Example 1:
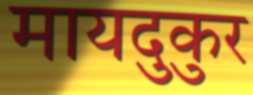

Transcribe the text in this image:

मायदुकुर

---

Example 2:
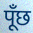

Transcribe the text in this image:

पूँछ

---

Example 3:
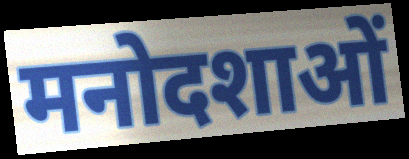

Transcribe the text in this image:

मनोदशाओं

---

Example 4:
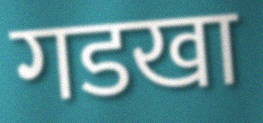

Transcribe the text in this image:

गडखा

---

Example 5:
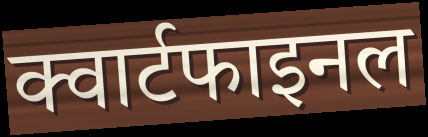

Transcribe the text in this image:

क्वार्टफाइनल